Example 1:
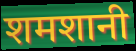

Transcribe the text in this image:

शमशानी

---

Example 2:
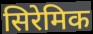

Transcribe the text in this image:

सिरेमिक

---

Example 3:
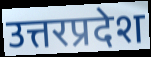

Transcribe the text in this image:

उत्तरप्रदेश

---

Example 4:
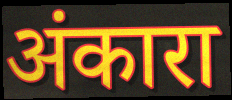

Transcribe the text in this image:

अंकारा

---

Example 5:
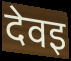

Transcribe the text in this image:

देवइ